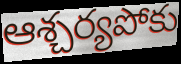
ఆశ్చర్యపోకు